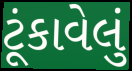
ટૂંકાવેલું